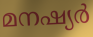
മനഷ്യർ